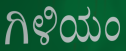
ಗಿಳಿಯಂ